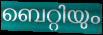
ബെറ്റിയും